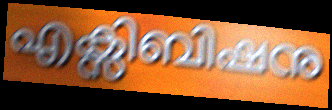
എക്സിബിഷനു